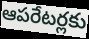
ఆపరేటర్లకు